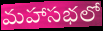
మహాసభలో